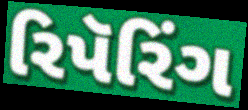
રિપૅરિંગ